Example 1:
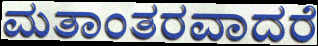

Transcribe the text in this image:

ಮತಾಂತರವಾದರೆ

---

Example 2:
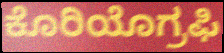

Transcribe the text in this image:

ಕೊರಿಯೊಗ್ರಫಿ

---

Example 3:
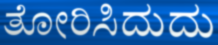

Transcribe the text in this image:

ತೋರಿಸಿದುದು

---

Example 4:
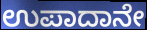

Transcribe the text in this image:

ಉಪಾದಾನೇ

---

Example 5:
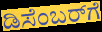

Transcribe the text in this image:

ಡಿಸೆಂಬರ್‌ಗೆ